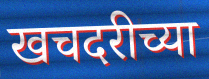
खचदरीच्या